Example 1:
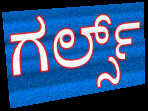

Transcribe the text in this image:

ಗರ್ಲ್ಸ್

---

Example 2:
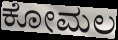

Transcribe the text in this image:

ಕೋಮಲ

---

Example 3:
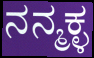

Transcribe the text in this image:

ನನ್ಮಕ್ಳ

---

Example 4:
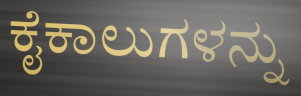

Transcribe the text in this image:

ಕೈಕಾಲುಗಳನ್ನು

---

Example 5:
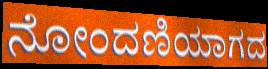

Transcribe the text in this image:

ನೋಂದಣಿಯಾಗದ